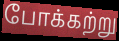
போக்கற்று